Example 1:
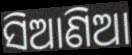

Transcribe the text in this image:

ସିଆଣିଆ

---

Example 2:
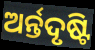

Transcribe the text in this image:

ଅର୍ନ୍ତଦୃଷ୍ଟି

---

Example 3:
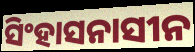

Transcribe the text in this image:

ସିଂହାସନାସୀନ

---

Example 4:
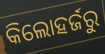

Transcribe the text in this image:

କିଲୋହର୍ଜରୁ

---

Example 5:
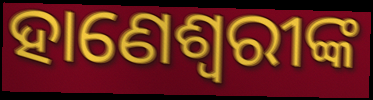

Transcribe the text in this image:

ହାଣେଶ୍ୱରୀଙ୍କ